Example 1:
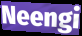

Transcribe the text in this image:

Neengi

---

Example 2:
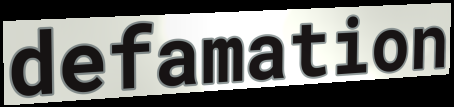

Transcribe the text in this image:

defamation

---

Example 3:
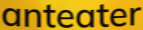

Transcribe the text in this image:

anteater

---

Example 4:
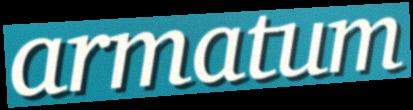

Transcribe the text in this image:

armatum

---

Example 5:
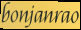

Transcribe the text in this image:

bonjanrao